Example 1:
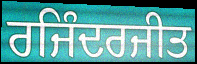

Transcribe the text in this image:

ਰਜਿੰਦਰਜੀਤ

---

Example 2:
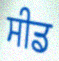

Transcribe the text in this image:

ਸੀਡ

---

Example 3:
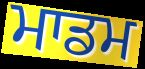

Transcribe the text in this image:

ਮਾਡਮ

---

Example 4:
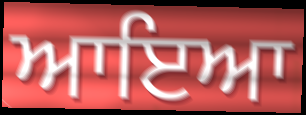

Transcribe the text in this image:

ਆਇਆ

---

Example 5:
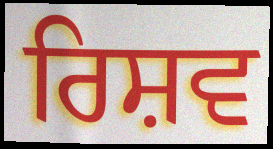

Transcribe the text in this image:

ਰਿਸ਼ਵ